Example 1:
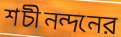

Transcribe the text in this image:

শচীনন্দনের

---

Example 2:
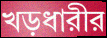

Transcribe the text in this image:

খড়ধারীর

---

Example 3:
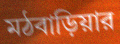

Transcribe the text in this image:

মঠবাড়িয়ার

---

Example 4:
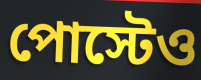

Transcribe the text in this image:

পোস্টেও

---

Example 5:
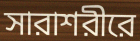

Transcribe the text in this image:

সারাশরীরে